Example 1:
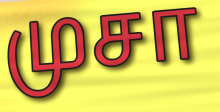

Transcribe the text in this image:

முசா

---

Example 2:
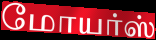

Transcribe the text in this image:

மோயர்ஸ்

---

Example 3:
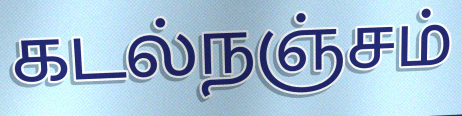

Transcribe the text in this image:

கடல்நஞ்சம்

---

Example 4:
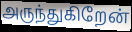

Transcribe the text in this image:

அருந்துகிறேன்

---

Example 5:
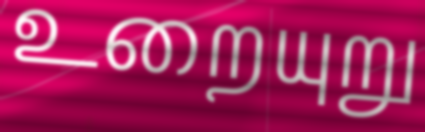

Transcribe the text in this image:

உறையுறு